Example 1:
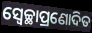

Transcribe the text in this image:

ସ୍ୱେଚ୍ଛାପ୍ରଣୋଦିତ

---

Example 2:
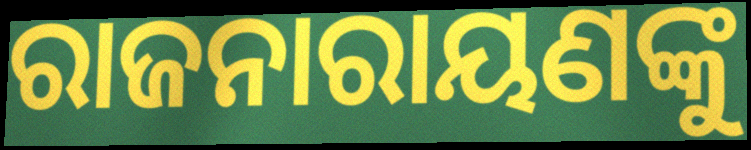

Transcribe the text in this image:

ରାଜନାରାୟଣଙ୍କୁ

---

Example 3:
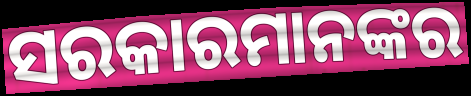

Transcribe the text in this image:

ସରକାରମାନଙ୍କର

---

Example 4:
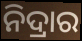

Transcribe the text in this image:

ନିଦ୍ରାର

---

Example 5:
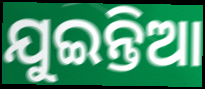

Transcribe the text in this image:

ଯୁଇନ୍ତିଆ